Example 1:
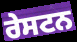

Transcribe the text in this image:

ਰੇਸਟਨ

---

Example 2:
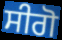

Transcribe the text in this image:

ਸੀਗੋ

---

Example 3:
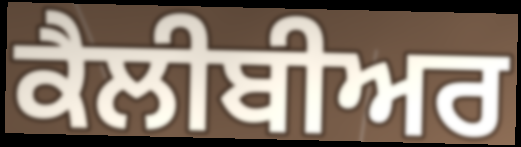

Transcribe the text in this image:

ਕੈਲੀਬੀਅਰ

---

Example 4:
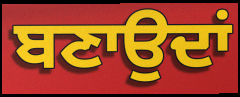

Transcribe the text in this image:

ਬਣਾਉਦਾਂ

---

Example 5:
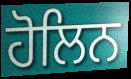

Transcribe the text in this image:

ਹੋਲਿਨ